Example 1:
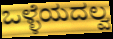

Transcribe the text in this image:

ಒಳ್ಳೆಯದಲ್ವ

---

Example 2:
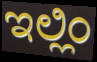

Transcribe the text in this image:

ಇಲ್ಲಿಂ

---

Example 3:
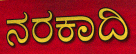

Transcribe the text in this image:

ನರಕಾದಿ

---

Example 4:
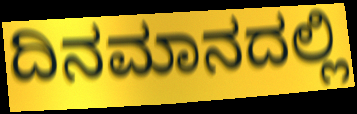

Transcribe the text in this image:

ದಿನಮಾನದಲ್ಲಿ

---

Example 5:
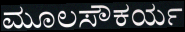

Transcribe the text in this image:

ಮೂಲಸೌಕರ್ಯ